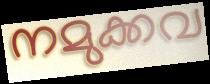
നമുക്കവ